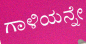
ಗಾಳಿಯನ್ನೇ